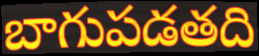
బాగుపడతది